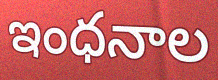
ఇంధనాల